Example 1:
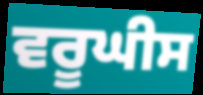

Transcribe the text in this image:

ਵਰੂਘੀਸ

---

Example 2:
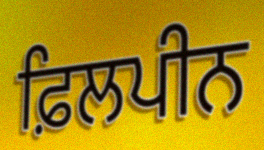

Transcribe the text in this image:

ਫ਼ਿਲਪੀਨ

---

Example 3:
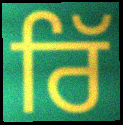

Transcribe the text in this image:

ਰਿੱ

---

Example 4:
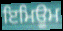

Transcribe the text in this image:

ਇਮਿਊਮ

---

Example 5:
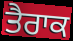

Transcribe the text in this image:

ਤੈਰਾਕ